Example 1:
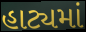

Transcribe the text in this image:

હાટ્યમાં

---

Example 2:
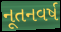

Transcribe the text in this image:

નૂતનવર્ષ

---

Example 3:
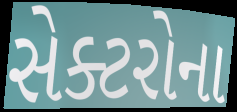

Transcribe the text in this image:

સેક્ટરોના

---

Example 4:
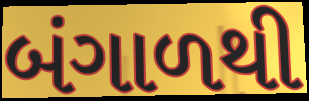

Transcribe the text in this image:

બંગાળથી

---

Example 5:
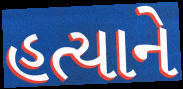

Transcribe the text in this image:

હત્યાને